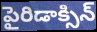
పైరిడాక్సిన్